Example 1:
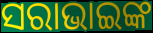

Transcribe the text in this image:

ସରାଭାଇଙ୍କ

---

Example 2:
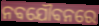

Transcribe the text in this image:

ନବଯୌବନରେ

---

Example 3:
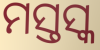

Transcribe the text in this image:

ମସ୍ତସ୍କ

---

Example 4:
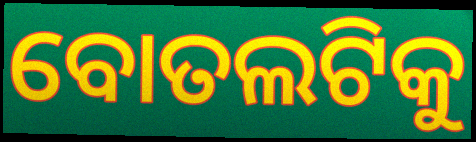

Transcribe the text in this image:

ବୋତଲଟିକୁ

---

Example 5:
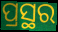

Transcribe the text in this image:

ପ୍ରସ୍ଥର